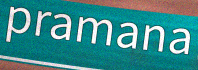
pramana